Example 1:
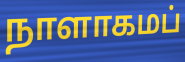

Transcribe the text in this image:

நாளாகமப்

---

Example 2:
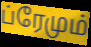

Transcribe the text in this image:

ப்ரேமும்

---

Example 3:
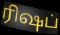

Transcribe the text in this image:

ரிஷப்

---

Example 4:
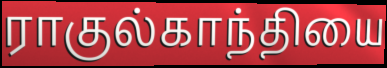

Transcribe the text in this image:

ராகுல்காந்தியை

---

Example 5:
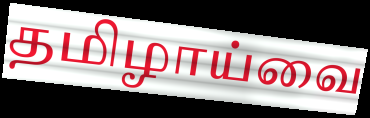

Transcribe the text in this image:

தமிழாய்வை